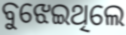
ବୁଝେଇଥିଲେ